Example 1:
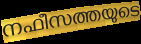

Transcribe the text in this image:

നഫീസത്തയുടെ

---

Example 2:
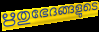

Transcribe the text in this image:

ഋതുഭേദങ്ങളുടെ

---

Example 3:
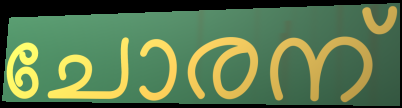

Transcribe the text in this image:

ചോരന്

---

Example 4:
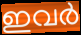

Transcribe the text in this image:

ഇവർ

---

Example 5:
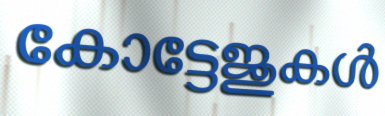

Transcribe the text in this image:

കോട്ടേജുകൾ